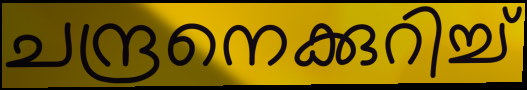
ചന്ദ്രനെക്കുറിച്ച്